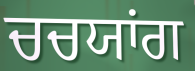
ਚਚਯਾਂਗ